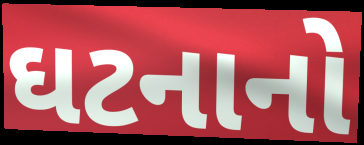
ઘટનાનો